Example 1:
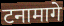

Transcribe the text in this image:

टनामागे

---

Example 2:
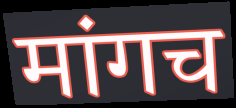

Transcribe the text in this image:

मांगच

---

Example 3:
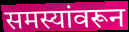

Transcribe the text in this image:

समस्यांवरून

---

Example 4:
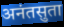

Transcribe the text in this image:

अनंतसुता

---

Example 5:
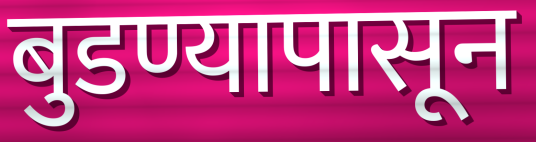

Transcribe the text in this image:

बुडण्यापासून